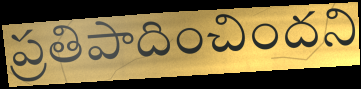
ప్రతిపాదించిందని